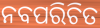
ନବପରିଚିତ